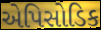
એપિસોડિક